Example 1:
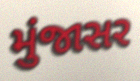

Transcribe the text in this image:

મુંજાસર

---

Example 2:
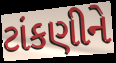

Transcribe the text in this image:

ટાંકણીને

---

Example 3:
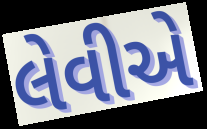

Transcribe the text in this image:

લેવીએ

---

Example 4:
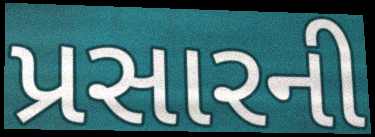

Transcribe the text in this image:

પ્રસારની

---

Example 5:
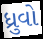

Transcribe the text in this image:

ધ્રુવો